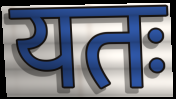
यतः